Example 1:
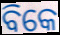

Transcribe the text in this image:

ବିକେ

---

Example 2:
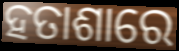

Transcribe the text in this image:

ହତାଶାରେ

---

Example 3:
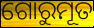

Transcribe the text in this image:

ଗୋରୁମୂତ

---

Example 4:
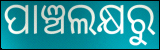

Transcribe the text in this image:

ପାଞ୍ଚଲକ୍ଷରୁ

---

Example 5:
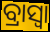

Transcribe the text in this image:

ବ୍ରାସ୍ବା